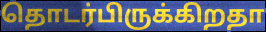
தொடர்பிருக்கிறதா